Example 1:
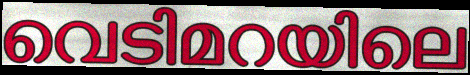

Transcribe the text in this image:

വെടിമറയിലെ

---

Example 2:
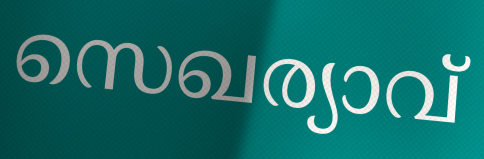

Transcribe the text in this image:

സെഖര്യാവ്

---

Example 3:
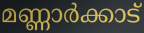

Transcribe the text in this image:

മണ്ണാർക്കാട്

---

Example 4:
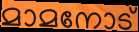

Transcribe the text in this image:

മാമനോട്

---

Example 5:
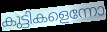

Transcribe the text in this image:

കുട്ടികളെന്നോ